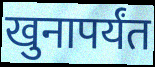
खुनापर्यंत